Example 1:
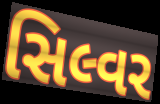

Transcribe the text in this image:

સિલ્વર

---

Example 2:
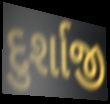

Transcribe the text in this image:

દુર્શાજી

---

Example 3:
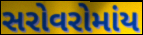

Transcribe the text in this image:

સરોવરોમાંય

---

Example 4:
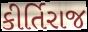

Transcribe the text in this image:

કીર્તિરાજ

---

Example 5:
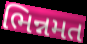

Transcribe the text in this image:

ભિન્નમત